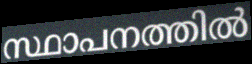
സ്ഥാപനത്തിൽ